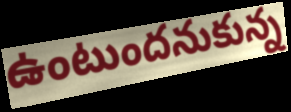
ఉంటుందనుకున్న